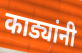
काड्यांनी